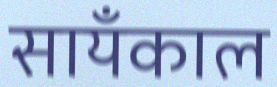
सायँकाल